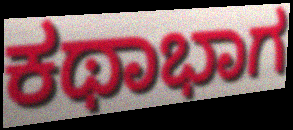
ಕಥಾಭಾಗ